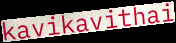
kavikavithai